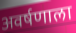
अवर्षणाला